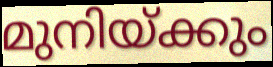
മുനിയ്ക്കും